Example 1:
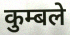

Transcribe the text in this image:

कुम्बले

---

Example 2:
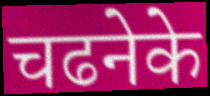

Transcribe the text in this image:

चढनेके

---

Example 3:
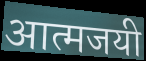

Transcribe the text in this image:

आत्मजयी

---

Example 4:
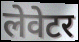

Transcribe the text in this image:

लेवेटर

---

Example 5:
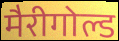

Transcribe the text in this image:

मैरीगोल्ड